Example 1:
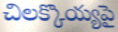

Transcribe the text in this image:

చిలక్కొయ్యపై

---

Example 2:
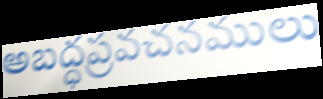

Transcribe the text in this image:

అబద్ధప్రవచనములు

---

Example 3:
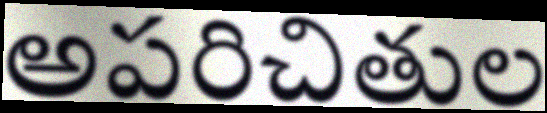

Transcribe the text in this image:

అపరిచితుల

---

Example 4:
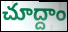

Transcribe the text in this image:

చూద్దాం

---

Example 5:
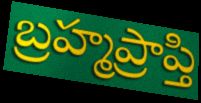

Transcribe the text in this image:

బ్రహ్మప్రాప్తి